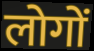
लोगों